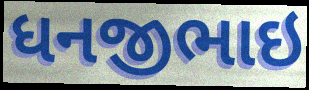
ધનજીભાઇ